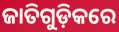
ଜାତିଗୁଡ଼ିକରେ